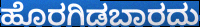
ಹೊರಗಿಡಬಾರದು